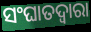
ସଂଘାତଦ୍ୱାରା